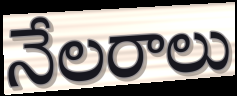
నేలరాలు